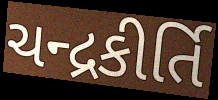
ચન્દ્રકીર્તિ